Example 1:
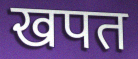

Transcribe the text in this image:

खपत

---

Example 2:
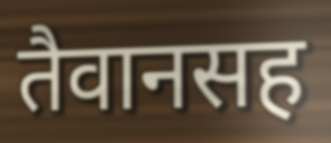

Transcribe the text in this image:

तैवानसह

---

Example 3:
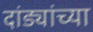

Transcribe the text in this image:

दांड्यांच्या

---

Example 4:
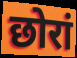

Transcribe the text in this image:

छोरां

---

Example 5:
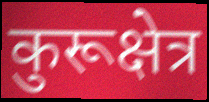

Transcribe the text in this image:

कुरूक्षेत्र